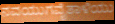
ನವಯುಗವೈತಾಳಿಯು